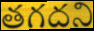
తగదని